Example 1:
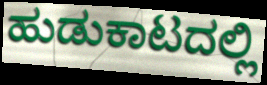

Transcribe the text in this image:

ಹುಡುಕಾಟದಲ್ಲಿ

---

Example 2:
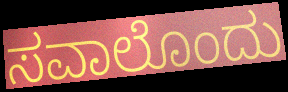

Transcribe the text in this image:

ಸವಾಲೊಂದು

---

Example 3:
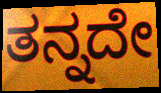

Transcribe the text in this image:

ತನ್ನದೇ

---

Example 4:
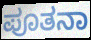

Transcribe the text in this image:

ಪೂತನಾ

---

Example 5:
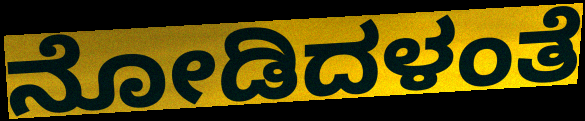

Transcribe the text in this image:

ನೋಡಿದಳಂತೆ